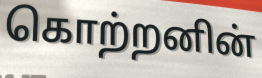
கொற்றனின்